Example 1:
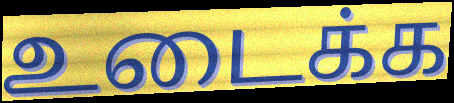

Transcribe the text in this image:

உடைக்க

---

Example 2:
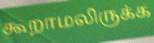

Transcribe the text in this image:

கூறாமலிருக்க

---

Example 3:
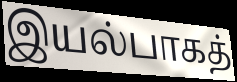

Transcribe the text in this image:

இயல்பாகத்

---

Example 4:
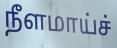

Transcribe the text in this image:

நீளமாய்ச்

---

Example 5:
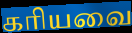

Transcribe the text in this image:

கரியவை